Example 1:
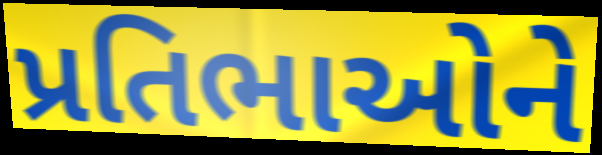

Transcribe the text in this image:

પ્રતિભાઓને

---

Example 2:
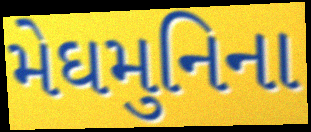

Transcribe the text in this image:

મેઘમુનિના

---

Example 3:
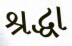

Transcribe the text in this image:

શ્રદ્ધા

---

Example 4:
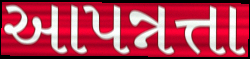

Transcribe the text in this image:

આપન્નત્તા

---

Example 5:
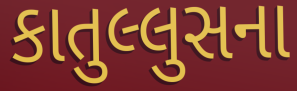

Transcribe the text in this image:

કાતુલ્લુસના